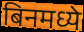
बिनमध्ये